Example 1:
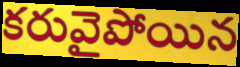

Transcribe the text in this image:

కరువైపోయిన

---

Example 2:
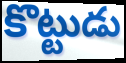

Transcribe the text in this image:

కొట్టుడు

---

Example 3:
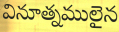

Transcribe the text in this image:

వినూత్నములైన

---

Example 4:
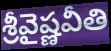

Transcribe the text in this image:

శ్రీవైష్ణవీతి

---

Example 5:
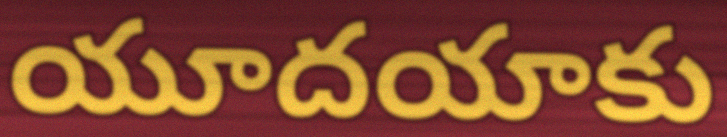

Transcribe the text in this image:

యూదయాకు